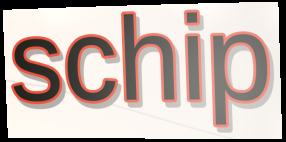
schip